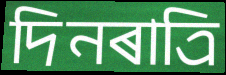
দিনৰাত্ৰি